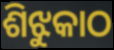
ଶିଝୁକାଠ